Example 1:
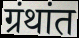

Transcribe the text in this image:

ग्रंथांत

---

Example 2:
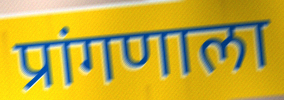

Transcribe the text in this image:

प्रांगणाला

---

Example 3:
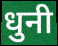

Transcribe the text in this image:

धुनी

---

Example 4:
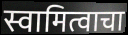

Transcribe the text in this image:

स्वामित्वाचा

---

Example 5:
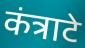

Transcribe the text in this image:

कंत्राटे